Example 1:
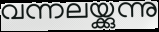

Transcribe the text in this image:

വന്നലയ്ക്കുന്നു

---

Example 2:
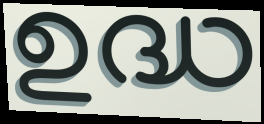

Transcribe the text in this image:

ഉദ്ധ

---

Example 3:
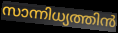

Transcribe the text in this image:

സാന്നിധ്യത്തിൻ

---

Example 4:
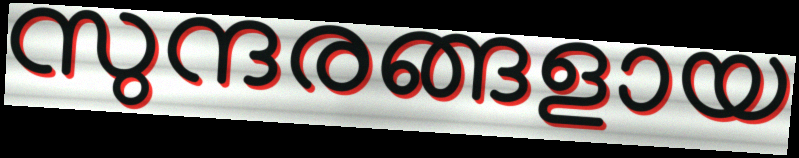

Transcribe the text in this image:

സുന്ദരങ്ങളായ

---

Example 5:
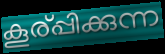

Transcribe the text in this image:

കൂര്പ്പിക്കുന്ന